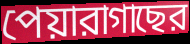
পেয়ারাগাছের